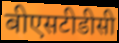
बीएसटीडीसी